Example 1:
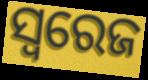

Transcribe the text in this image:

ସ୍ବରେଜ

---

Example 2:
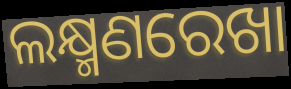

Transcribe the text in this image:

ଲକ୍ଷ୍ମଣରେଖା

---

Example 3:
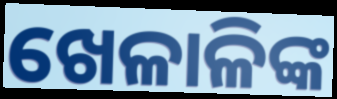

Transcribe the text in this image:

ଖେଳାଳିଙ୍କ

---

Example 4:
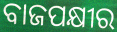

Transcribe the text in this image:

ବାଜପକ୍ଷୀର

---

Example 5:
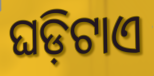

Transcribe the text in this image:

ଘଡ଼ିଟାଏ